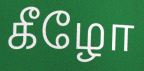
கீழோ